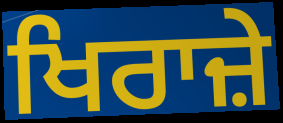
ਖਿਰਾਜ਼ੇ